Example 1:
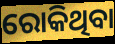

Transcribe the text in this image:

ରୋକିଥିବା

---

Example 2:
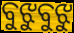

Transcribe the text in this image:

ବୁଝୁବୁଝୁ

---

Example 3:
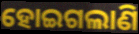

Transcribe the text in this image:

ହୋଇଗଲାଣି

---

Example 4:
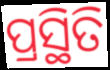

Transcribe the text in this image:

ପ୍ରସ୍ଥିତି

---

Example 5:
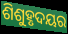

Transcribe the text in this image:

ଶିଶୁହୃଦୟର